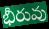
భీరువు